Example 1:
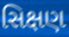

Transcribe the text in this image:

સિક્ષણ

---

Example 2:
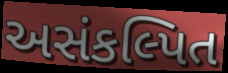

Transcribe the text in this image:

અસંકલ્પિત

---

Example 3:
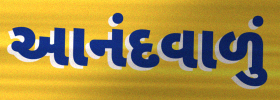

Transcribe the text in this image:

આનંદવાળું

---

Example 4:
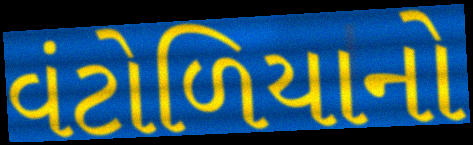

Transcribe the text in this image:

વંટોળિયાનો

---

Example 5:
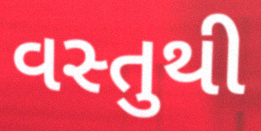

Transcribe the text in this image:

વસ્તુથી